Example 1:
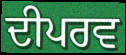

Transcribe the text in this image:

ਦੀਪਰਵ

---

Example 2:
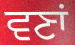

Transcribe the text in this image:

ਵਣਾਂ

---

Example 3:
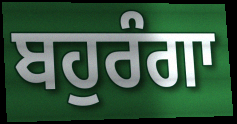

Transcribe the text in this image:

ਬਹੁਰੰਗਾ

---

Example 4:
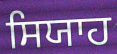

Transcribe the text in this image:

ਸਿਯਾਹ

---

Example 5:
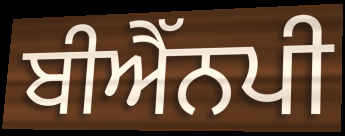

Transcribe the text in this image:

ਬੀਐੱਨਪੀ